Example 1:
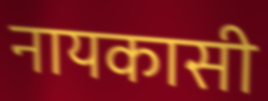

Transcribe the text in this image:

नायकासी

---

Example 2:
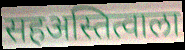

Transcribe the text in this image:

सहअस्तित्वाला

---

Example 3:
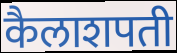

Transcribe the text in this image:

कैलाशपती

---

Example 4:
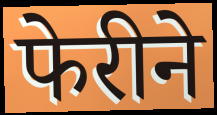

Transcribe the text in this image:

फेरीने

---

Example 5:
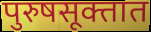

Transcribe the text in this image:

पुरुषसूक्तात